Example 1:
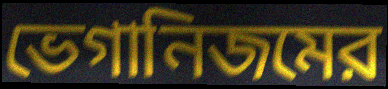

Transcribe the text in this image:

ভেগানিজমের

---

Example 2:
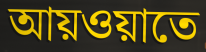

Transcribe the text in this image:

আয়ওয়াতে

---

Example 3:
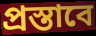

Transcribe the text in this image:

প্রস্তাবে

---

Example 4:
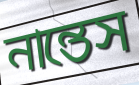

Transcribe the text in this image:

নান্তেস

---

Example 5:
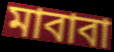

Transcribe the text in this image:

মাবাবা